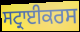
ਸਟ੍ਰਾਈਕਰਸ